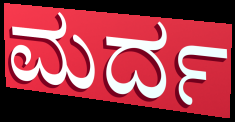
ಮರ್ದ